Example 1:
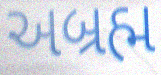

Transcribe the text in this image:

અબ્રહ્મ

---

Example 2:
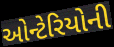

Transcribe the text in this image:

ઓન્ટેરિયોની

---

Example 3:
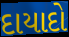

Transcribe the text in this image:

દાયાદો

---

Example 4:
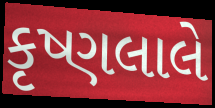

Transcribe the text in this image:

કૃષ્ણલાલે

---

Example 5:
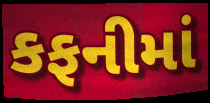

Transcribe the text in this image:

કફનીમાં